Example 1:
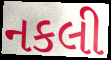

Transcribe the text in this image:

નકલી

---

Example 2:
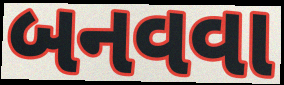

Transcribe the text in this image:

બનવવા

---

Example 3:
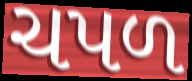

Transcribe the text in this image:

ચપળ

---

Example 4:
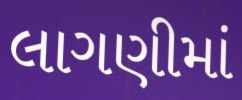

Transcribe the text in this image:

લાગણીમાં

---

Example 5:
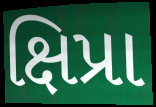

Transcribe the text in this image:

ક્ષિપ્રા